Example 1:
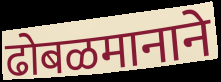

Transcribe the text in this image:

ढोबळमानाने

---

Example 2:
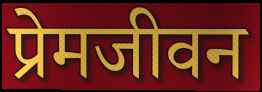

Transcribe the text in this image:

प्रेमजीवन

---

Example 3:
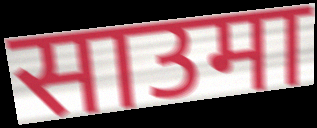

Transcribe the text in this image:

साउमा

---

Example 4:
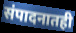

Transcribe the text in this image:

संपादनातही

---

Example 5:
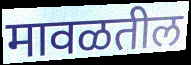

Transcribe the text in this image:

मावळतील